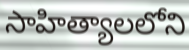
సాహిత్యాలలోని